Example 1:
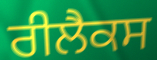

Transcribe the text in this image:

ਰੀਲੈਕਸ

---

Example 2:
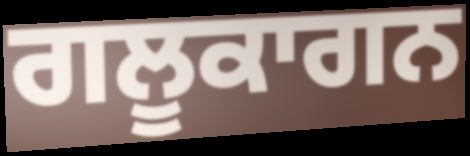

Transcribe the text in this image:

ਗਲੂਕਾਗਨ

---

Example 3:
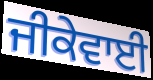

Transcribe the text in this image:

ਜੀਕੇਵਾਈ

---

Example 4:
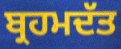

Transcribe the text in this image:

ਬ੍ਰਹਮਦੱਤ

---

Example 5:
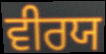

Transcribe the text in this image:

ਵੀਰਯ